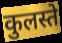
कुलस्ते